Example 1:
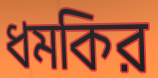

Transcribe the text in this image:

ধমকির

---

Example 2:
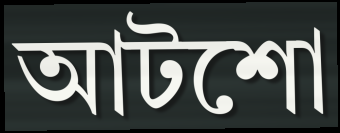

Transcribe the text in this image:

আটশো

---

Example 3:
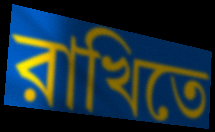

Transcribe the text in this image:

রাখিতে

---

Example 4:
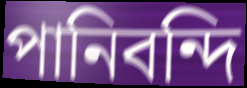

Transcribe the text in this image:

পানিবন্দি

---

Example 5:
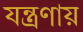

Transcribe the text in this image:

যন্ত্রণায়